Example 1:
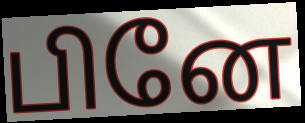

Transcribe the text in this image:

பினே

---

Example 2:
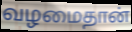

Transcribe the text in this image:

வழமைதான்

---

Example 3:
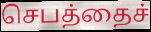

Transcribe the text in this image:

செபத்தைச்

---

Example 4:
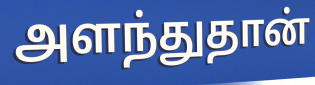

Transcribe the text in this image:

அளந்துதான்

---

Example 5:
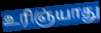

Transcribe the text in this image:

உரிஞ்யாது